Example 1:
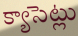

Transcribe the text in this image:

క్యాసెట్లు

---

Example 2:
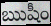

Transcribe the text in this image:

ఋషీం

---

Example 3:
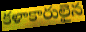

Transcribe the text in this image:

కళాకారులైన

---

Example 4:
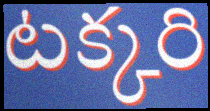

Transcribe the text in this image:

టక్కరి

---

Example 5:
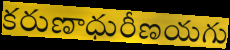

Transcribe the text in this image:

కరుణాధురీణయగు